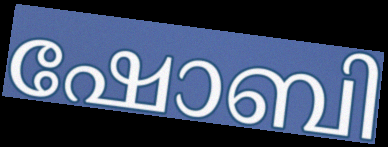
ഷോബി